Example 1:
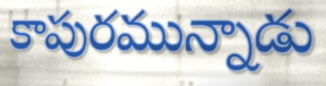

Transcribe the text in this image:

కాపురమున్నాడు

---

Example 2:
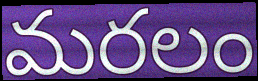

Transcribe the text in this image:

మరలం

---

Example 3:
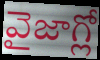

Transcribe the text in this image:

వైజాగ్లో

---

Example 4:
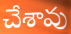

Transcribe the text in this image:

చేశావు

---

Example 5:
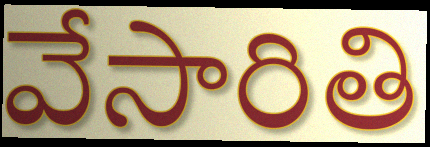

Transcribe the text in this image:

వేసారితి